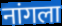
नांगला